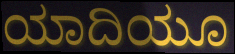
ಯಾದಿಯೂ